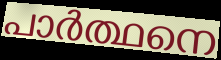
പാർത്ഥനെ